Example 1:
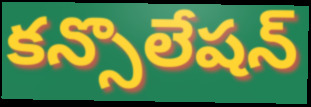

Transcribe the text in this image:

కన్సొలేషన్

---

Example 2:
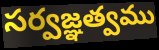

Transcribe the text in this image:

సర్వజ్ఞత్వము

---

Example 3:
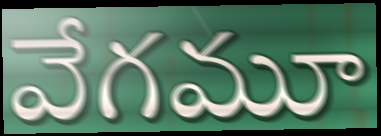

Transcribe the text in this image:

వేగమూ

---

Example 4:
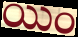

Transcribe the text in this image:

యిం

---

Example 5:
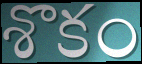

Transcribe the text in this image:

శొకం